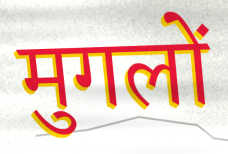
मुगलों